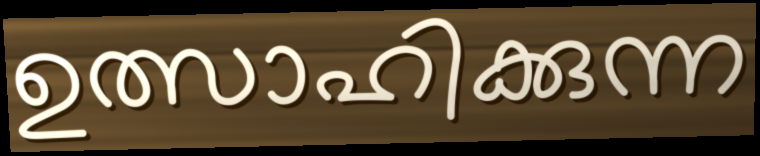
ഉത്സാഹിക്കുന്ന